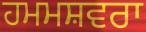
ਹਮਮਸ਼ਵਰਾ